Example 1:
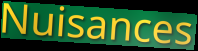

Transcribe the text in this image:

Nuisances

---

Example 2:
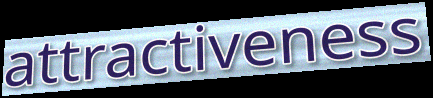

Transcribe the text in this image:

attractiveness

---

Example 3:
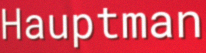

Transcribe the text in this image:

Hauptman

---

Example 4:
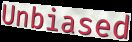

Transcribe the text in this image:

Unbiased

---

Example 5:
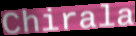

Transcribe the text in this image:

Chirala